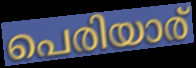
പെരിയാര്